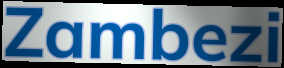
Zambezi